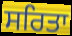
ਸਰਿਤਾ